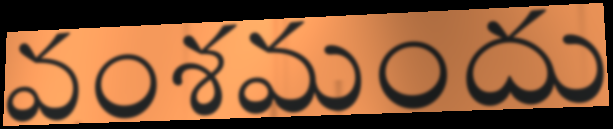
వంశమందు